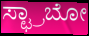
ಸ್ಟ್ರಾಬೋ